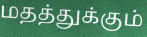
மதத்துக்கும்